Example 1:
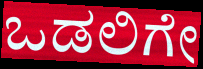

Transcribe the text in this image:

ಒಡಲಿಗೇ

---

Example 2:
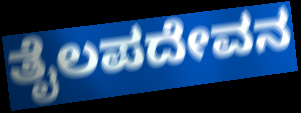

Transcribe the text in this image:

ತೈಲಪದೇವನ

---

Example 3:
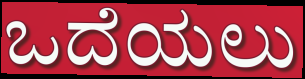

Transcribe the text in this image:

ಒದೆಯಲು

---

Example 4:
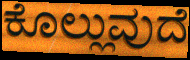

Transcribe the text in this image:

ಕೊಲ್ಲುವುದೆ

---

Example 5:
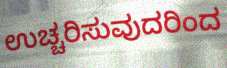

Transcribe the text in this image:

ಉಚ್ಚರಿಸುವುದರಿಂದ